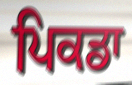
ਪਿਕਡਾ